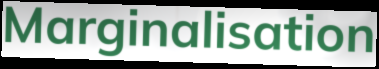
Marginalisation